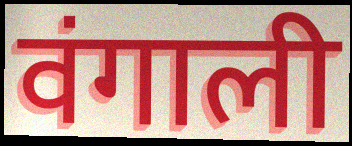
वंगाली